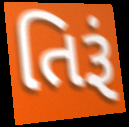
તિરૂં